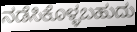
ನಡೆಸಿಕೊಳ್ಳಬಹುದು